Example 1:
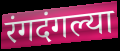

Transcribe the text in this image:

रंगदंगल्या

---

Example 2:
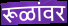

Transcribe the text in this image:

रूळांवर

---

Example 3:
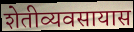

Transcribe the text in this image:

शेतीव्यवसायास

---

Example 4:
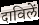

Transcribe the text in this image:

दाविलें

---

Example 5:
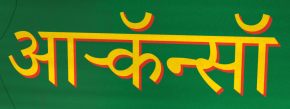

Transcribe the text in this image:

आर्‍कॅन्सॉ